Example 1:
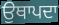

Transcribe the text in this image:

ਉਥਾਪਦਾ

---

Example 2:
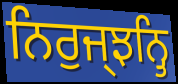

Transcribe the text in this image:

ਨਿਰੁਜ੍ਝਨ੍ਤਿ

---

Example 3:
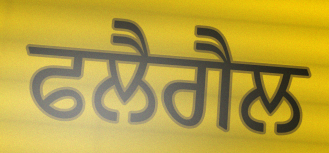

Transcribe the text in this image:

ਫਲੈਗੈਲ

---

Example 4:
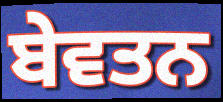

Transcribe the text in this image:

ਬੇਵਤਨ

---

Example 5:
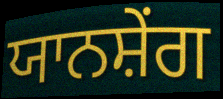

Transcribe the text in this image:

ਯਾਨਸ਼ੇਂਗ